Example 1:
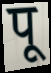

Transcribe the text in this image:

पू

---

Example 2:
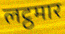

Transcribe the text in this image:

लट्ठमार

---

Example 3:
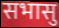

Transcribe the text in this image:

सभासु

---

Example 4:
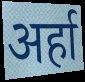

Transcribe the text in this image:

अर्हा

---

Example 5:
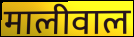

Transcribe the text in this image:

मालीवाल